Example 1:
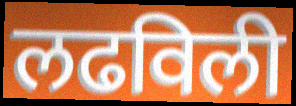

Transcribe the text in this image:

लढविली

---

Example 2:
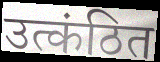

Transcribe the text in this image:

उत्कंठित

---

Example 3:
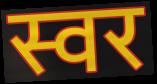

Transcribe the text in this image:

स्वर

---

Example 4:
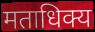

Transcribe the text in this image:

मताधिक्य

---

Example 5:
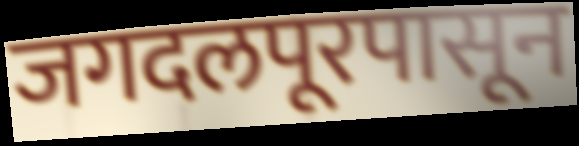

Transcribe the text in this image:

जगदलपूरपासून